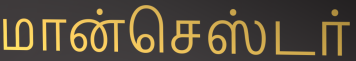
மான்செஸ்டர்